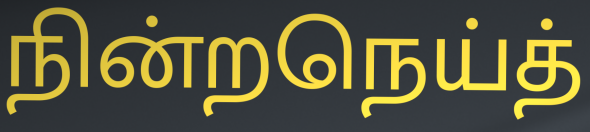
நின்றநெய்த்